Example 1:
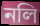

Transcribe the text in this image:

নলি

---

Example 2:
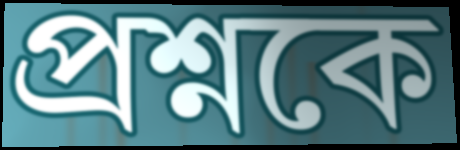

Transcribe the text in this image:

প্রশ্নকে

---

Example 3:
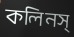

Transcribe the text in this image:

কলিনস্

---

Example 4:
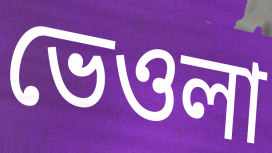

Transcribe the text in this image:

ভেওলা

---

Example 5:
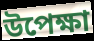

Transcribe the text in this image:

উপেক্ষা